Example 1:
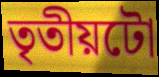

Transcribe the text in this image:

তৃতীয়টো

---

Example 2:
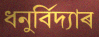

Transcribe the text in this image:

ধনুৰ্বিদ্যাৰ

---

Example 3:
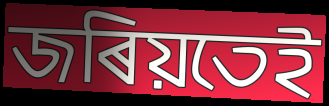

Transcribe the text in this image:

জৰিয়তেই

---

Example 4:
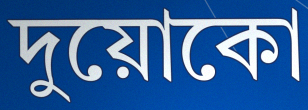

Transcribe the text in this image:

দুয়োকো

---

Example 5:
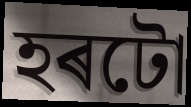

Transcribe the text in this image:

হৰটো